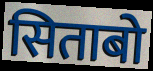
सिताबो